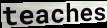
teaches